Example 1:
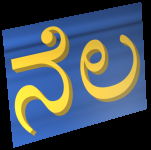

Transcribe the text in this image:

ನೆಲ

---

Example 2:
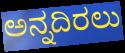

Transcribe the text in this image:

ಅನ್ನದಿರಲು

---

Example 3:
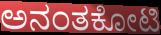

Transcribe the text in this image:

ಅನಂತಕೋಟಿ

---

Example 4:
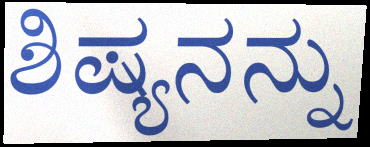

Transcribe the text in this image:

ಶಿಷ್ಯನನ್ನು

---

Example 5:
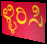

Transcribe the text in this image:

ಳ್ಳಿರಿಸಿ